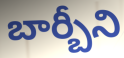
బార్బీని